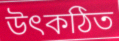
উৎকঠিত